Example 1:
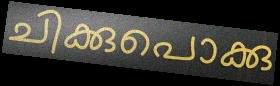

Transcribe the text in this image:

ചിക്കുപൊക്കു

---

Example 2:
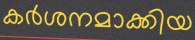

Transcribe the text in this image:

കർശനമാക്കിയ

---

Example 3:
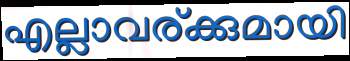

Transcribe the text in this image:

എല്ലാവര്ക്കുമായി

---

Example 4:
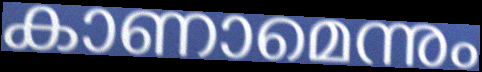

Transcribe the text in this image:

കാണാമെന്നും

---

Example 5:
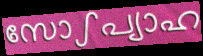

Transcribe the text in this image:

സോഽപ്യാഹ